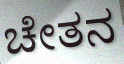
ಚೇತನ